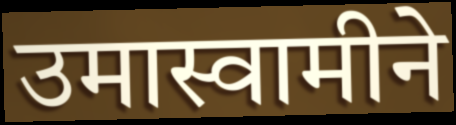
उमास्वामीने